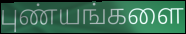
புண்யங்களை